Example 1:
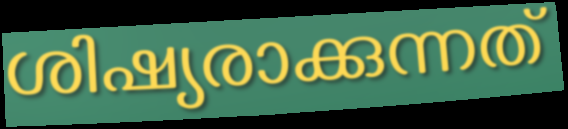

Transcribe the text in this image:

ശിഷ്യരാക്കുന്നത്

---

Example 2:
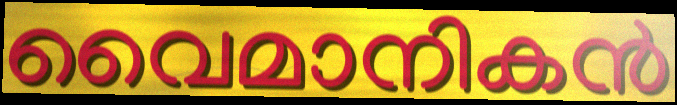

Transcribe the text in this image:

വൈമാനികൻ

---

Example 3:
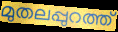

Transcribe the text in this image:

മുതലപ്പുറത്ത്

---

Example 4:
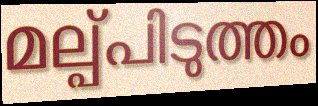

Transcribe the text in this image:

മല്പ്പിടുത്തം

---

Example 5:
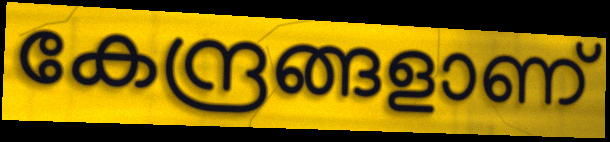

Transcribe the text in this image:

കേന്ദ്രങ്ങളാണ്